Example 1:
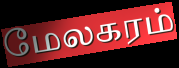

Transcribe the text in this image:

மேலகரம்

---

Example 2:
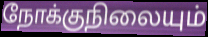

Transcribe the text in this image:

நோக்குநிலையும்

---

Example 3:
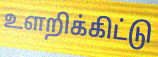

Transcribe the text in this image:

உளறிக்கிட்டு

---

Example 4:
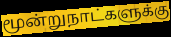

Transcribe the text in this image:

மூன்றுநாட்களுக்கு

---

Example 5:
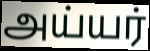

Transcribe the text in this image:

அய்யர்